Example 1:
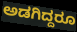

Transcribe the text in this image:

ಅಡಗಿದ್ದರೂ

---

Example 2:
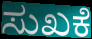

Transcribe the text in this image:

ಸುಖಕೆ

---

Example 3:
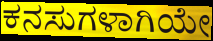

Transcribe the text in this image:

ಕನಸುಗಳಾಗಿಯೇ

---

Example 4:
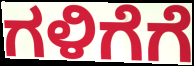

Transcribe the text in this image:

ಗಳಿಗೆಗೆ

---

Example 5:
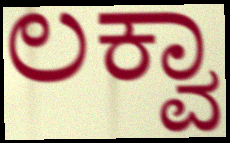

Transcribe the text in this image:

ಲಕ್ವಾ